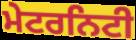
ਮੇਟਰਨਿਟੀ